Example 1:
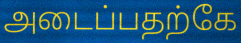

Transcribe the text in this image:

அடைப்பதற்கே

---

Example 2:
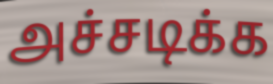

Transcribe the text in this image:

அச்சடிக்க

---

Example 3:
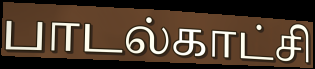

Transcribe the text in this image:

பாடல்காட்சி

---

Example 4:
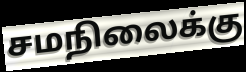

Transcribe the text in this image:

சமநிலைக்கு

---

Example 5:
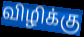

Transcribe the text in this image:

விழிக்கு